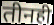
तीनही